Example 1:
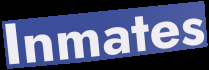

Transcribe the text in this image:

Inmates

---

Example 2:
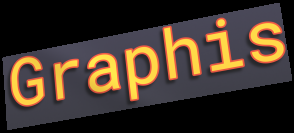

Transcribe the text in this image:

Graphis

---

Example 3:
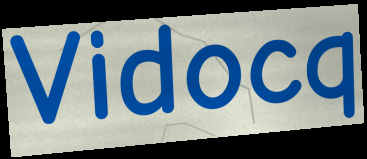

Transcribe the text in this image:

Vidocq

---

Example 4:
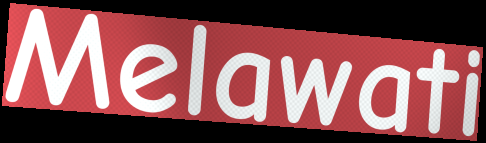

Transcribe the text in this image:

Melawati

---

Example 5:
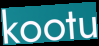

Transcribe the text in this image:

kootu